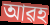
আৱহ